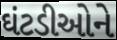
ઘંટડીઓને